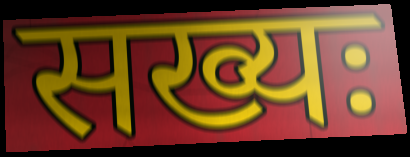
सख्यः